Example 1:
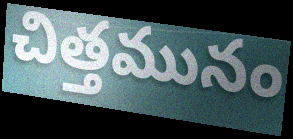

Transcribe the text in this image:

చిత్తమునం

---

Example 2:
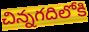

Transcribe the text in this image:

చిన్నగదిలోకి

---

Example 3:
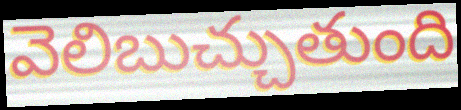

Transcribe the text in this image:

వెలిబుచ్చుతుంది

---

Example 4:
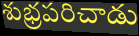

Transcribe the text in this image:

శుభ్రపరిచాడు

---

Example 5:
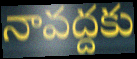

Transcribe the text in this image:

నావద్దకు